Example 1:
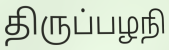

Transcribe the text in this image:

திருப்பழநி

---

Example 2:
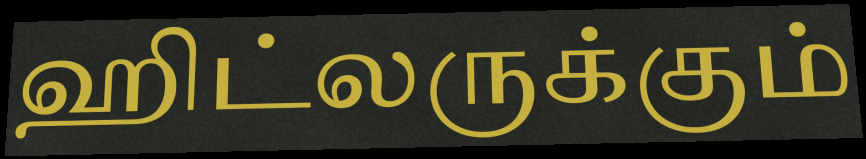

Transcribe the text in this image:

ஹிட்லருக்கும்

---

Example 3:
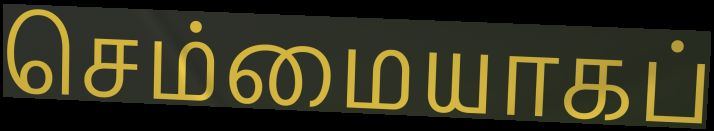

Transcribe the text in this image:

செம்மையாகப்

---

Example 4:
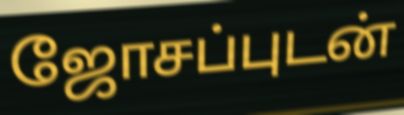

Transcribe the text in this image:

ஜோசப்புடன்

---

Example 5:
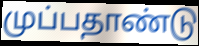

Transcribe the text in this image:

முப்பதாண்டு